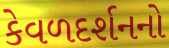
કેવળદર્શનનો